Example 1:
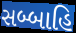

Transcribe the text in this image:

સબ્બાહિ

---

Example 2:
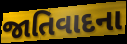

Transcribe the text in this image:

જાતિવાદના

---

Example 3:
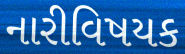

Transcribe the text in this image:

નારીવિષયક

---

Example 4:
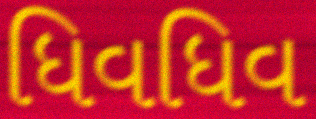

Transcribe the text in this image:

ધિવધિવ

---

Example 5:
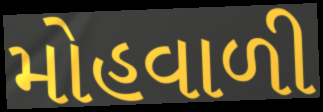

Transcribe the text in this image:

મોહવાળી